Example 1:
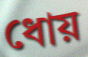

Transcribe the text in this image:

ধোয়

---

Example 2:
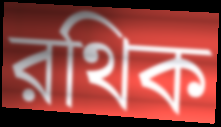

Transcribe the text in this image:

রথিক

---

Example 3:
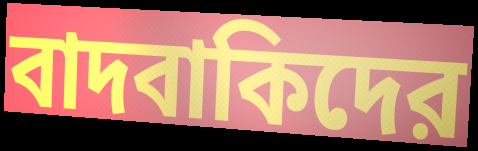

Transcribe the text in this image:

বাদবাকিদের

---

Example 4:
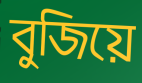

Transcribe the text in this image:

বুজিয়ে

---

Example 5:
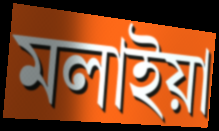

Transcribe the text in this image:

মলাইয়া